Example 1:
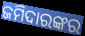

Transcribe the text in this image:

ଜମିଦାରଙ୍କର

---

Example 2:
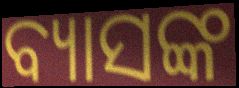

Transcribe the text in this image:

ବ୍ୟାସଙ୍କ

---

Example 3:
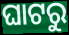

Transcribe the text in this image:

ଘାଟରୁ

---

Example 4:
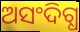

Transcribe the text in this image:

ଅସଂଦିଗ୍ଧ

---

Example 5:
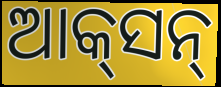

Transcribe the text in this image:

ଆକ୍‍ସନ୍